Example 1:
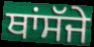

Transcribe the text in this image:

ਥਾਂਸੱਜੇ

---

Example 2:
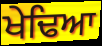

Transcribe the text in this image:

ਖੇਢਿਆ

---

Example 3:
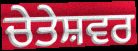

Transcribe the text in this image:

ਚੇਤੇਸ਼ਵਰ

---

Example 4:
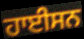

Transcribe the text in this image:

ਹਾਈਸਨ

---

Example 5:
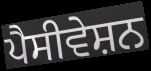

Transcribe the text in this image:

ਪੈਸੀਵੇਸ਼ਨ